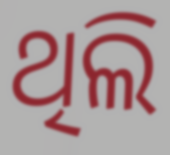
ଥିଲି